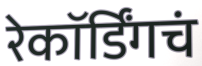
रेकॉर्डिंगचं